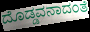
ದೊಡ್ಡವನಾದಂತೆ